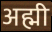
अह्मी